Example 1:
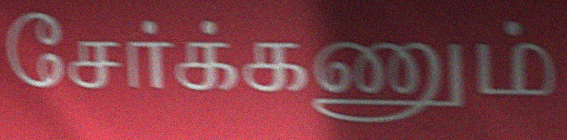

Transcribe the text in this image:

சேர்க்கணும்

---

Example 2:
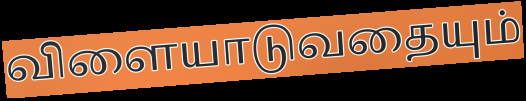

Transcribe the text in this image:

விளையாடுவதையும்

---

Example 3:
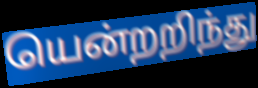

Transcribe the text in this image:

யென்றறிந்து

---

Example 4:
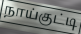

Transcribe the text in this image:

நாய்குட்டி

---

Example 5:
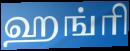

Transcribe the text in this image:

ஹங்ரி